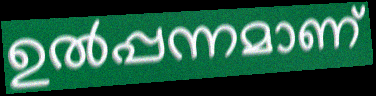
ഉൽപ്പന്നമാണ്